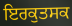
ਇਰਕੁਤਸਕ